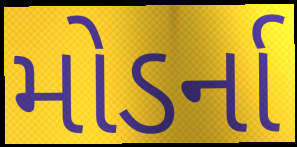
મોડર્ના